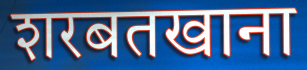
शरबतखाना